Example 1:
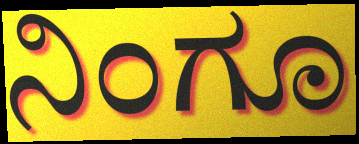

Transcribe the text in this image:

ನಿಂಗೂ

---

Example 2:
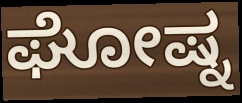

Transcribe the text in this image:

ಘೋಷ್ನ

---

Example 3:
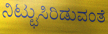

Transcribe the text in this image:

ನಿಟ್ಟುಸಿರಿಡುವಂತೆ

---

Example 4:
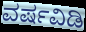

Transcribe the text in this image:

ವರ್ಷವಿಡಿ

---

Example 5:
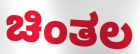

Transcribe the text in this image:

ಚಿಂತಲ